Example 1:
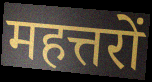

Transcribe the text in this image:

महत्तरों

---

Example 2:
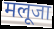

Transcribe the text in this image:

मलूजा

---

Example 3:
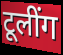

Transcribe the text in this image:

टूलींग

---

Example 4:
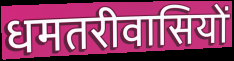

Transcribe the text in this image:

धमतरीवासियों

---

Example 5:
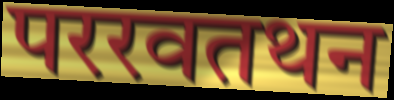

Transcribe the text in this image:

पररवतथन